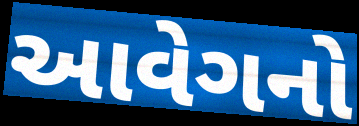
આવેગનો